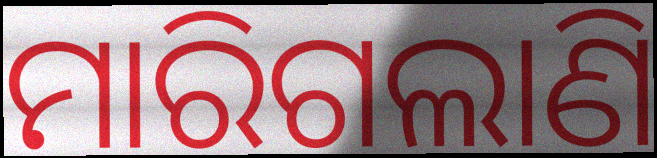
ମାରିଗଲାଣି